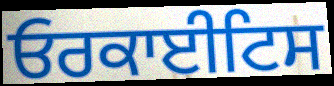
ਓਰਕਾਈਟਿਸ